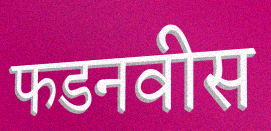
फडनवीस